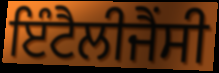
ਇੰਟੈਲੀਜੈਂਸੀ